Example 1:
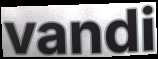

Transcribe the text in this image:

vandi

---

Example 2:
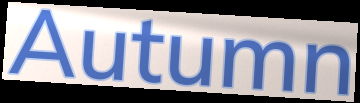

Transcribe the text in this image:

Autumn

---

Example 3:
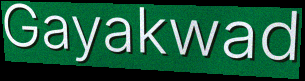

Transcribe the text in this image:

Gayakwad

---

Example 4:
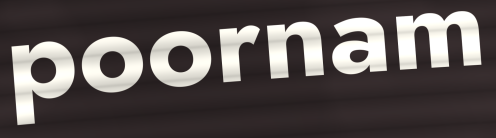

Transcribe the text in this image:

poornam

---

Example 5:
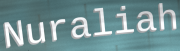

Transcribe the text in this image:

Nuraliah